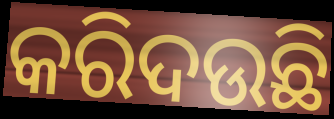
କରିଦଉଛି